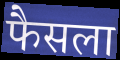
फैसला